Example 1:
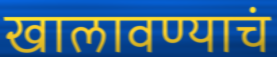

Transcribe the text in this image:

खालावण्याचं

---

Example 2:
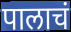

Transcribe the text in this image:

पालाचं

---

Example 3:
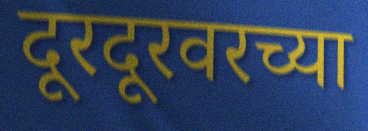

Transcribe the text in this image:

दूरदूरवरच्या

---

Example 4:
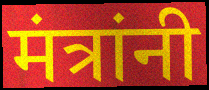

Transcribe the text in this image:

मंत्रांनी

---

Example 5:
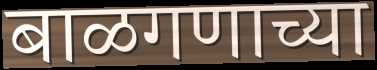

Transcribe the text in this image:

बाळगणाच्या